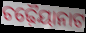
ଚଢ଼ୈୟାନାଟ